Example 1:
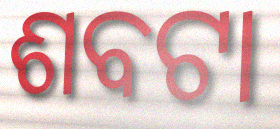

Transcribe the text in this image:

ଶବଟା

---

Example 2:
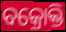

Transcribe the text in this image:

ବକ୍ରୋକ୍ତି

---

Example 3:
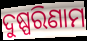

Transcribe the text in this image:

ଦୁଷ୍ପରିଣାମ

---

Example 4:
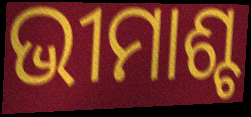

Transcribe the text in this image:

ଭୀମାଶ୍ଚ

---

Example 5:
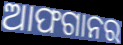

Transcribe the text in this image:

ଆଫଗାନର